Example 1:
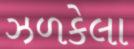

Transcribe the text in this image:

ઝળકેલા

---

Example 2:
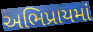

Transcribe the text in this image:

અભિપ્રાયમાં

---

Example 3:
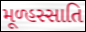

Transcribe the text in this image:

મૂળ્હસ્સાતિ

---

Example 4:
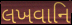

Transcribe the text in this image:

લખવાનિ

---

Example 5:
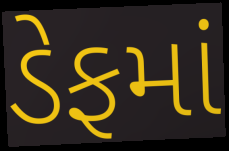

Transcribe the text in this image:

ડેફમાં